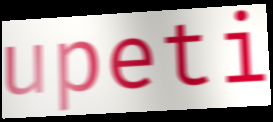
upeti